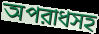
অপরাধসহ